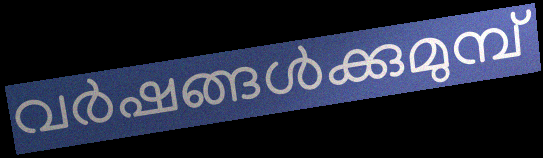
വർഷങ്ങൾക്കുമുമ്പ്